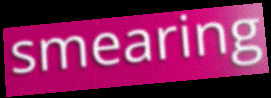
smearing